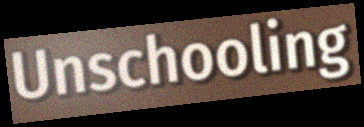
Unschooling